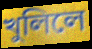
খুলিলে